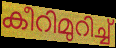
കീറിമുറിച്ച്